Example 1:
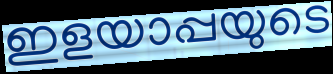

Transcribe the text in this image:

ഇളയാപ്പയുടെ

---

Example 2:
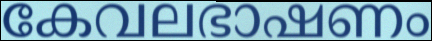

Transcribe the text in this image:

കേവലഭാഷണം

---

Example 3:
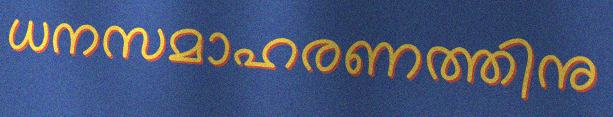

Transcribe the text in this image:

ധനസമാഹരണത്തിനു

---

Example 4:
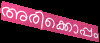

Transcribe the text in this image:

അരിക്കൊപ്പം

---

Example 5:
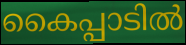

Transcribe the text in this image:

കൈപ്പാടിൽ